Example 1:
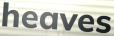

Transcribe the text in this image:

heaves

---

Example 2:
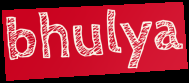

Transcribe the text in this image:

bhulya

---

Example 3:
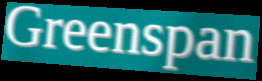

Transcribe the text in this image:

Greenspan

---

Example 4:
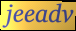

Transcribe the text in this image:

jeeadv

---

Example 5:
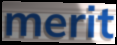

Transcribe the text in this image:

merit